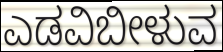
ಎಡವಿಬೀಳುವ